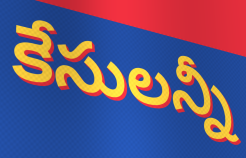
కేసులన్నీ